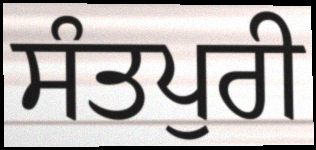
ਸੰਤਪੁਰੀ